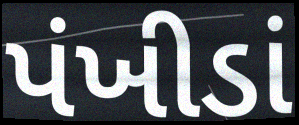
પંખીડાં